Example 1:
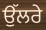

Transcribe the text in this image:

ਉੱਲਰੇ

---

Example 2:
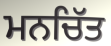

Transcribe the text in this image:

ਮਨਚਿੱਤ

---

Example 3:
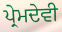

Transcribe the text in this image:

ਪ੍ਰੇਮਦੇਵੀ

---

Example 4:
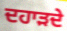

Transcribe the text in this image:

ਦਹਾੜਦੇ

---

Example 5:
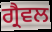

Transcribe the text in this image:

ਗ੍ਰੈਵਲ